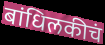
बांधिलकीचं